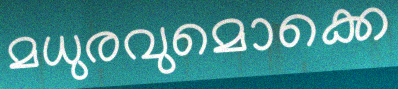
മധുരവുമൊക്കെ